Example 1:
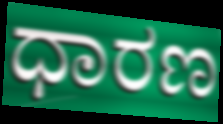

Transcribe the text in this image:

ಧಾರಣ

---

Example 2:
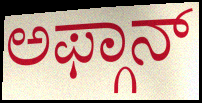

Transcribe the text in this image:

ಅಫ್ಗಾನ್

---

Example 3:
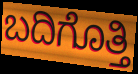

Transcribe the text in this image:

ಬದಿಗೊತ್ತಿ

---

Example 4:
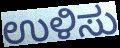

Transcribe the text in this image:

ಉಳಿಸು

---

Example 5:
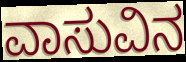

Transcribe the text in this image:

ವಾಸುವಿನ